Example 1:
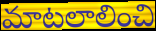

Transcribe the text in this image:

మాటలాలించి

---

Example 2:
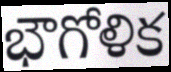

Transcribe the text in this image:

భౌగోళిక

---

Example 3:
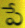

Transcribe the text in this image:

పే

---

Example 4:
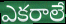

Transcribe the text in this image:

ఎకరాలే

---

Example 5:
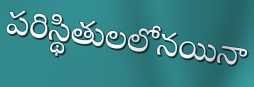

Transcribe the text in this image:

పరిస్థితులలోనయినా